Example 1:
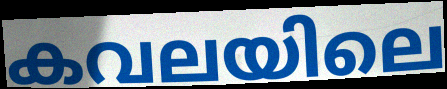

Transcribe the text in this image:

കവലയിലെ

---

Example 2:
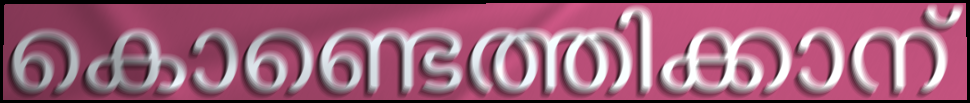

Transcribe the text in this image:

കൊണ്ടെത്തിക്കാന്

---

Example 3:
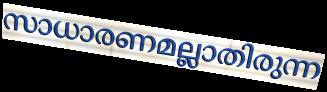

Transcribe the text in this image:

സാധാരണമല്ലാതിരുന്ന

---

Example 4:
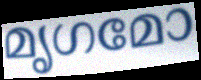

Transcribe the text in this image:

മൃഗമോ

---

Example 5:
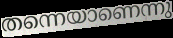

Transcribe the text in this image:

തന്നെയാണെന്നു